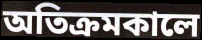
অতিক্রমকালে